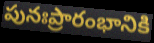
పునఃప్రారంభానికి